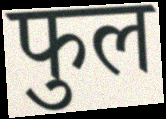
फुल